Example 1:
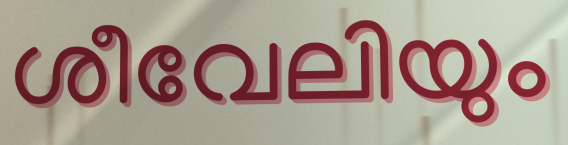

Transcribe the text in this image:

ശീവേലിയും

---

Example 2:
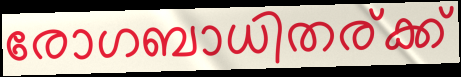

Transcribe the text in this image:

രോഗബാധിതര്ക്ക്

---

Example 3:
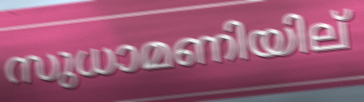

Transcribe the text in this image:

സുധാമണിയില്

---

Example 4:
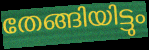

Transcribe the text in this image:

തേങ്ങിയിട്ടും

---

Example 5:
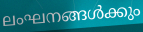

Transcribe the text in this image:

ലംഘനങ്ങൾക്കും